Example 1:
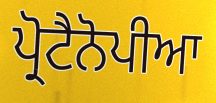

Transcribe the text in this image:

ਪ੍ਰੋਟੈਨੋਪੀਆ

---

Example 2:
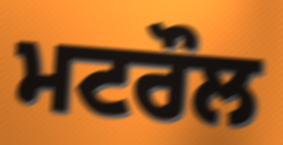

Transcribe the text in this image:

ਮਟਰੌਲ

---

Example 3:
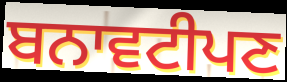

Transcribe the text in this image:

ਬਨਾਵਟੀਪਣ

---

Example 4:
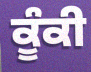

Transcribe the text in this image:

ਕੂੰਕੀ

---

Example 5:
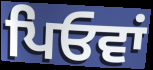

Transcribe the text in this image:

ਪਿਓਵਾਂ